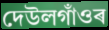
দেউলগাঁওৰ